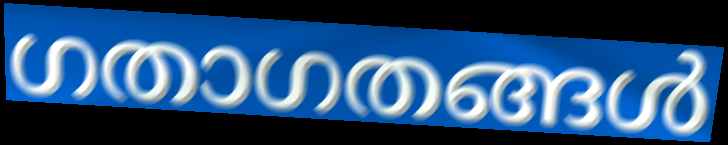
ഗതാഗതങ്ങൾ